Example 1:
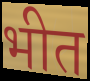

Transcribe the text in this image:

भीत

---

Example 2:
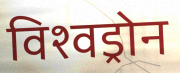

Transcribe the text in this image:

विश्वड्रोन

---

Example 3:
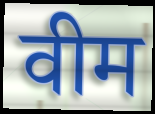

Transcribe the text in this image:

वीम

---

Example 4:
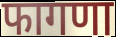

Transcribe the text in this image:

फागणा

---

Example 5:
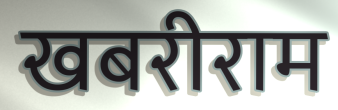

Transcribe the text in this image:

खबरीराम